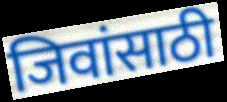
जिवांसाठी